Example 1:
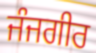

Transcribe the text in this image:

ਜੰਜਗੀਰ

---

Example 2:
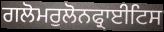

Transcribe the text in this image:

ਗਲੋਮਰੁਲੋਨਫ੍ਰਾਈਟਿਸ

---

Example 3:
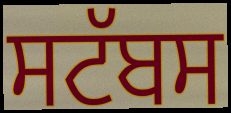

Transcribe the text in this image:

ਸਟੱਬਸ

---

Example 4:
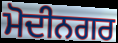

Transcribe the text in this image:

ਮੋਦੀਨਗਰ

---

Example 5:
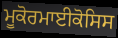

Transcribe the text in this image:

ਮੂਕੋਰਮਾਈਕੋਸਿਸ